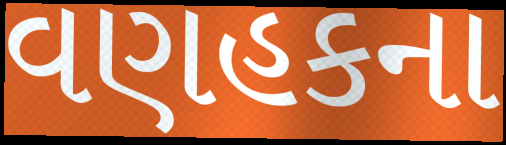
વણહકના